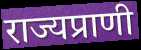
राज्यप्राणी